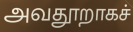
அவதூறாகச்